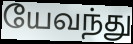
யேவந்து